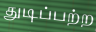
துடிப்பற்ற